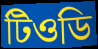
টিওডি